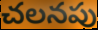
చలనపు